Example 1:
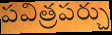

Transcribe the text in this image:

పవిత్రపర్చు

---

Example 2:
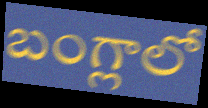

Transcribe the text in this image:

బంగ్లాలో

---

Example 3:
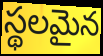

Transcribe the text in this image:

స్థలమైన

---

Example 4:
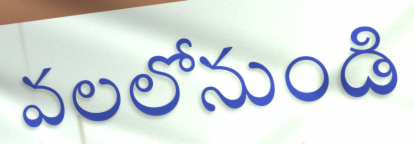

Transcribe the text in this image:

వలలోనుండి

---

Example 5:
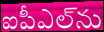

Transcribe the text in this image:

ఐపీఎల్‌ను